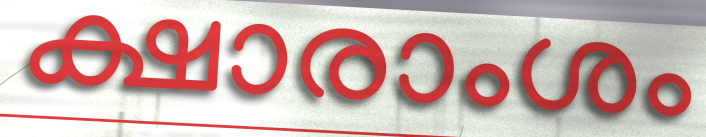
ക്ഷാരാംശം